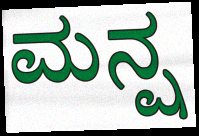
ಮನ್ಷ